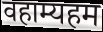
वहाम्यहम